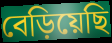
বেড়িয়েছি